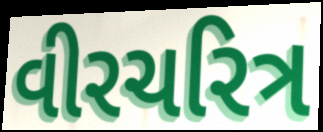
વીરચરિત્ર